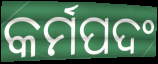
କର୍ମପଦଂ